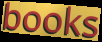
books